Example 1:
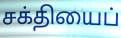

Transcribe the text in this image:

சக்தியைப்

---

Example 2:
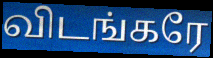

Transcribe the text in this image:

விடங்கரே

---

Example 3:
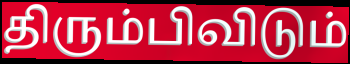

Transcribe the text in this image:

திரும்பிவிடும்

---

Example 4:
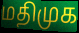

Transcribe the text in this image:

மதிமுக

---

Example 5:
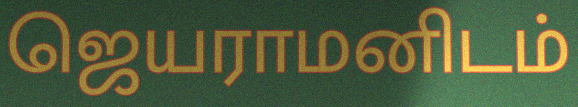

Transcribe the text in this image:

ஜெயராமனிடம்